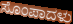
ಸೊಂಪಾದಳು